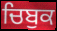
ਚਿਬੁਕ